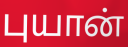
புயான்